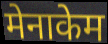
मेनाकेम